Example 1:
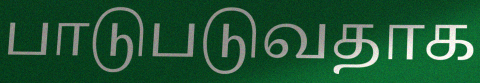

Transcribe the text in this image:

பாடுபடுவதாக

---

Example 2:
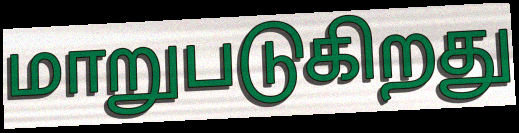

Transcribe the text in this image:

மாறுபடுகிறது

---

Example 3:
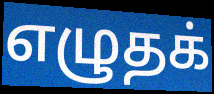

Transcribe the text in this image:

எழுதக்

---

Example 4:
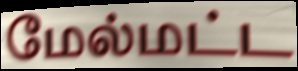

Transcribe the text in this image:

மேல்மட்ட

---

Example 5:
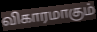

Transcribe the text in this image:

விகாரமாகும்